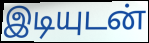
இடியுடன்